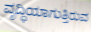
ವೃದ್ಧಿಯಾಗುತ್ತಿರುವ